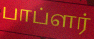
பாப்ளர்